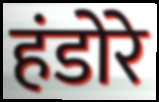
हंडोरे